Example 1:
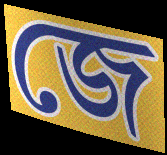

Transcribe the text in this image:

জে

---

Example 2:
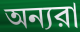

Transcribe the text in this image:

অন্যরা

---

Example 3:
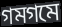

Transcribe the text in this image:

গমগমে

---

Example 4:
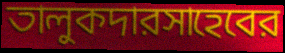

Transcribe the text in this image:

তালুকদারসাহেবের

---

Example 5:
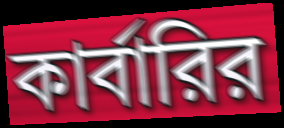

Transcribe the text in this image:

কার্বারির